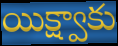
యిక్ష్వాకు